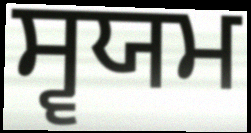
ਸ੍ਵਯਮ